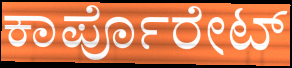
ಕಾರ್ಪೊರೇಟ್